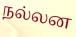
நல்லன